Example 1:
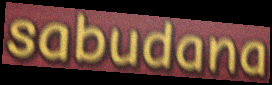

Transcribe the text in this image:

sabudana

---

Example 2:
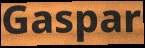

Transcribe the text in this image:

Gaspar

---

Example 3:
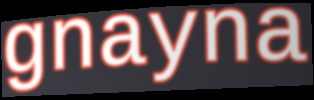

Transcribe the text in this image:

gnayna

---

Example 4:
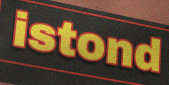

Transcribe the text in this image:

istond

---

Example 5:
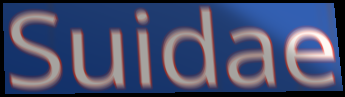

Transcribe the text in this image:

Suidae